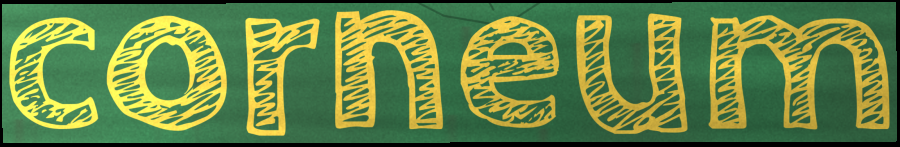
corneum